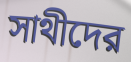
সাথীদের